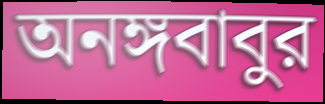
অনঙ্গবাবুর